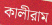
কালীরাম